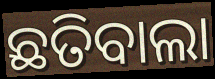
ଛତିବାଲା